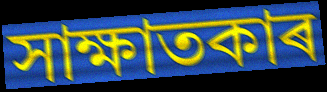
সাক্ষাতকাৰ